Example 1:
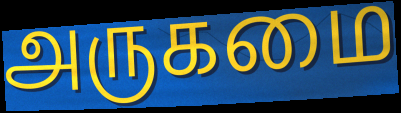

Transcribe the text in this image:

அருகமை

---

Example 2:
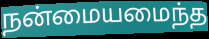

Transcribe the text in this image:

நன்மையமைந்த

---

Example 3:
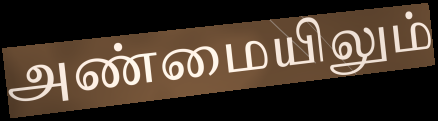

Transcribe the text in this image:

அண்மையிலும்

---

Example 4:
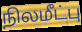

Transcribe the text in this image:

நிலமீட்பு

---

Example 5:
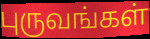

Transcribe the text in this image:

புருவங்கள்